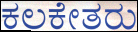
ಕಲಕೇತರು